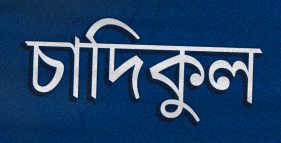
চাদিকুল